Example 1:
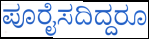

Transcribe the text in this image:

ಪೂರೈಸದಿದ್ದರೂ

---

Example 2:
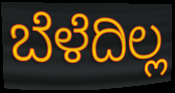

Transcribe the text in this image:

ಬೆಳೆದಿಲ್ಲ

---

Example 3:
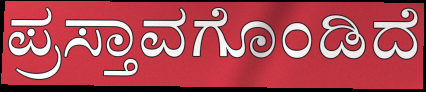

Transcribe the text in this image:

ಪ್ರಸ್ತಾವಗೊಂಡಿದೆ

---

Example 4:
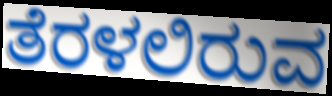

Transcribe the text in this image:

ತೆರಳಲಿರುವ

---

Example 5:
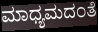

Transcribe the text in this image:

ಮಾಧ್ಯಮದಂತೆ